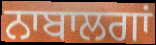
ਨਾਬਾਲਗਾਂ